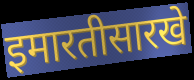
इमारतीसारखे